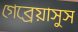
গেব্রেয়াসুস